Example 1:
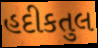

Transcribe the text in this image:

હદીકતુલ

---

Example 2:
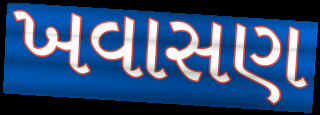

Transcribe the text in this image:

ખવાસણ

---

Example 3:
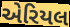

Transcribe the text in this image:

એરિયલ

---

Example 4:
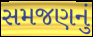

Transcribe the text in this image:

સમજણનું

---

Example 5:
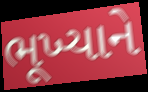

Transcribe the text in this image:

ભૂખ્યાને